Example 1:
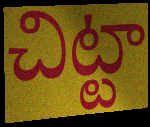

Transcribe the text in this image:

చిట్టా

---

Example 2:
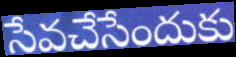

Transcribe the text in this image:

సేవచేసేందుకు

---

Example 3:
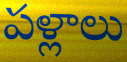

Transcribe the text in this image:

పళ్లాలు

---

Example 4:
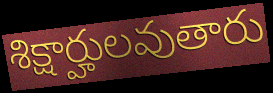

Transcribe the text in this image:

శిక్షార్హులవుతారు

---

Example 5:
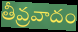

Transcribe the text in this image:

తీవ్రవాదం